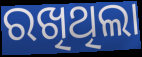
ରଖିଥିଲା